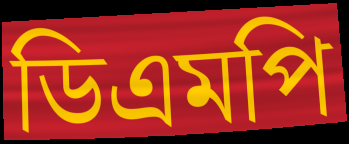
ডিএমপি